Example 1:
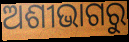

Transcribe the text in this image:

ଅଶୀଭାଗରୁ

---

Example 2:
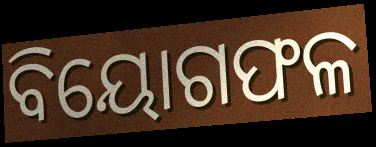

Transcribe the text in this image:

ବିୟୋଗଫଳ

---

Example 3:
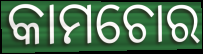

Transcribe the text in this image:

କାମଚୋର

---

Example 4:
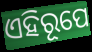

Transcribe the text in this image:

ଏହିରୂପେ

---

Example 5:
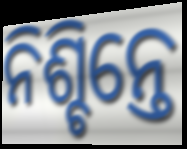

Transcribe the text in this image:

ନିଶ୍ଚିନ୍ତେ